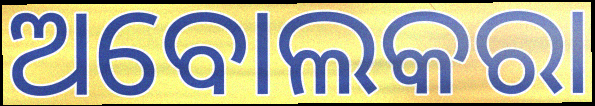
ଅବୋଲକରା